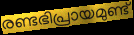
രണ്ടഭിപ്രായമുണ്ട്